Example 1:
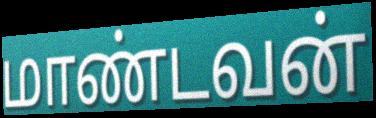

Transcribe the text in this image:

மாண்டவன்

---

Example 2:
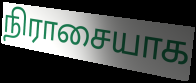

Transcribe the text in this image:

நிராசையாக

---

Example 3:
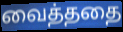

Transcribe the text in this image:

வைத்ததை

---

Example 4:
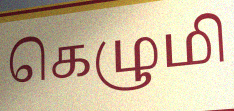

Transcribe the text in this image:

கெழுமி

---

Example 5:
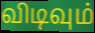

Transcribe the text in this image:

விடிவும்